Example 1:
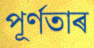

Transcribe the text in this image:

পূৰ্ণতাৰ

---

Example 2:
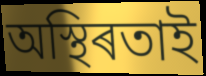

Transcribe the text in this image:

অস্থিৰতাই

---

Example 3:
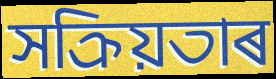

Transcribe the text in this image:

সক্ৰিয়তাৰ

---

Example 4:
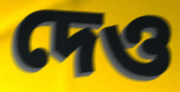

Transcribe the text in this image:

দেও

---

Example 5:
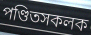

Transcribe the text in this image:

পণ্ডিতসকলক